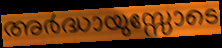
അർദ്ധായുസ്സോടെ